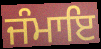
ਜੰਮਾਇ